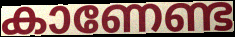
കാണേണ്ട